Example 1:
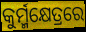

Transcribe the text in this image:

କୁର୍ମ୍ମକ୍ଷେତ୍ରରେ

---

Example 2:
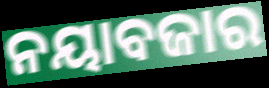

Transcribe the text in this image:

ନୟାବଜାର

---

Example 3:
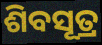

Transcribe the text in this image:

ଶିବସୂତ୍ର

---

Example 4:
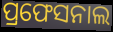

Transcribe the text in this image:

ପ୍ରଫେସନାଲ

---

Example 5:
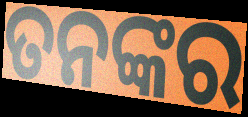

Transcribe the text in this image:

ତନଙ୍କର